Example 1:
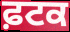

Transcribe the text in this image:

ਫ਼ਟਕ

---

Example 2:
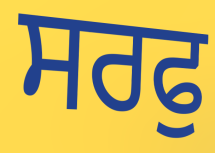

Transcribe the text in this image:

ਸਰਫੁ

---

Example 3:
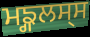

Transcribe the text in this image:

ਮਙ੍ਗਲਸ੍ਸ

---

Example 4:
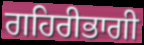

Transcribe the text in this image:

ਗਹਿਰੀਭਾਗੀ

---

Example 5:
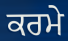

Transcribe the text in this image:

ਕਰਮੇ